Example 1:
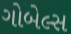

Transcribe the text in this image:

ગોબેલ્સ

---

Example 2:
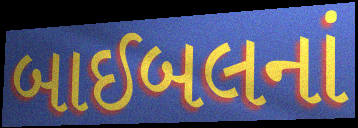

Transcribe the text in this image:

બાઈબલનાં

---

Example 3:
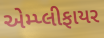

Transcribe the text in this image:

એમ્પ્લીફાયર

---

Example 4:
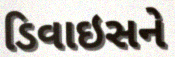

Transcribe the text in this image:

ડિવાઇસને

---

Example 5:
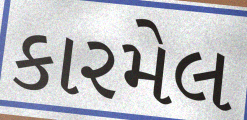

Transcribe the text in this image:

કારમેલ